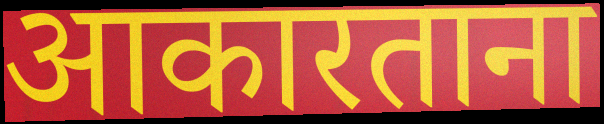
आकारताना